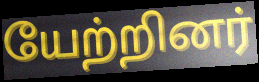
யேற்றினர்